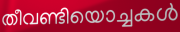
തീവണ്ടിയൊച്ചകൾ